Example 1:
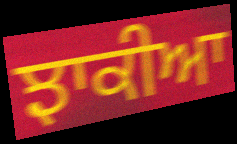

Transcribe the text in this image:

ਝਾਕੀਆ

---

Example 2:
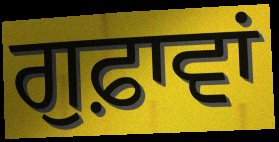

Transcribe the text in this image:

ਗੁਫ਼ਾਵਾਂ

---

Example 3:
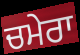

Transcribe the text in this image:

ਚਮੇਰਾ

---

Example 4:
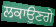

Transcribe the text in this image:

ਲਕਾਉਣਗੇ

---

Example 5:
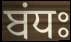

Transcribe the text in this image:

ਬਂਧਃ